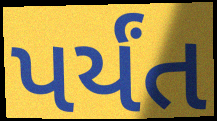
પર્યંત